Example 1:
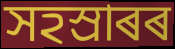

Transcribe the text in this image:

সহস্ৰাৰৰ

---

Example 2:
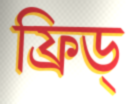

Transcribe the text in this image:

ফ্ৰিড্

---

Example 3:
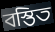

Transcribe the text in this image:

বস্তিত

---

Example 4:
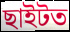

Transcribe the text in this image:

ছাইটত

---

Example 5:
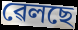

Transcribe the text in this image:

ৱেলছে